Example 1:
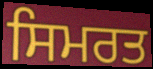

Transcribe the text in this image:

ਸਿਮਰਤ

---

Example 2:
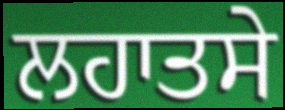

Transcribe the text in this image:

ਲਹਾਤਸੇ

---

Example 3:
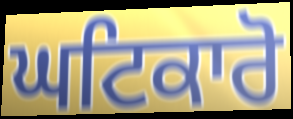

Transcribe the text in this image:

ਘਟਿਕਾਰੋ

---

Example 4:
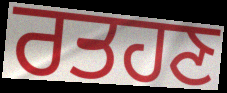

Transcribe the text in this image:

ਰਤਹਣ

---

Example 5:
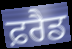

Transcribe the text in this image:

ਫ਼ਰੈਡ